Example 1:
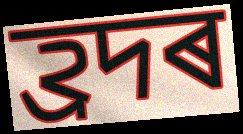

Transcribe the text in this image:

হ্ৰদৰ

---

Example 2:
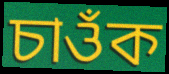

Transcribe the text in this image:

চাওঁক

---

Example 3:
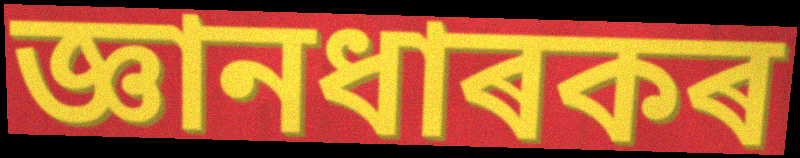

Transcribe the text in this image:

জ্ঞানধাৰকৰ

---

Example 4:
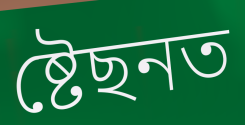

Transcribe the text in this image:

ষ্টেছনত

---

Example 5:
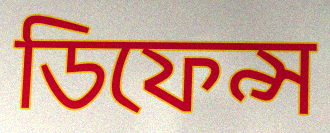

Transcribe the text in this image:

ডিফেন্স